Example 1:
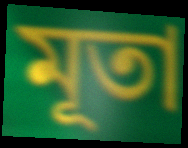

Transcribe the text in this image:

মূতা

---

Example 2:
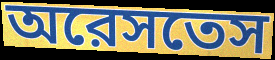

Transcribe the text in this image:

অরেসতেস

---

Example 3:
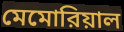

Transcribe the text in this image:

মেমোরিয়াল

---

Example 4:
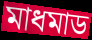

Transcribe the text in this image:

মাধমাড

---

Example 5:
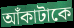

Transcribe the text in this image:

আঁকাটাকে